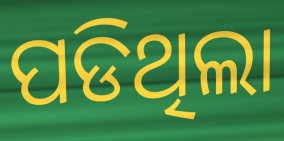
ପଡିଥିଲା